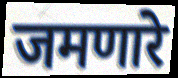
जमणारे